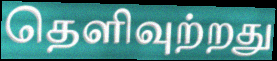
தெளிவுற்றது